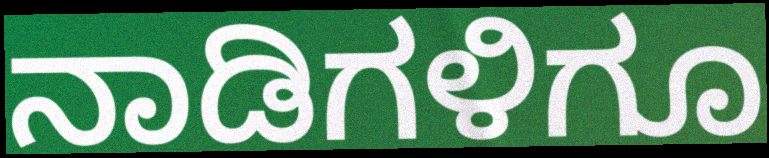
ನಾಡಿಗಳಿಗೂ